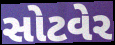
સોટવેર